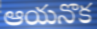
ఆయనొక